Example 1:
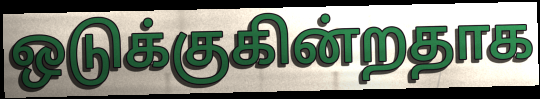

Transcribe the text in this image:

ஒடுக்குகின்றதாக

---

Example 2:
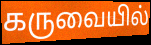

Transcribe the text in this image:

கருவையில்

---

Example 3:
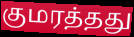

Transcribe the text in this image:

குமரத்தது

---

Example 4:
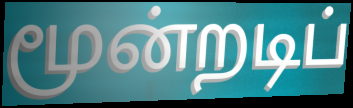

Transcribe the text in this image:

மூன்றடிப்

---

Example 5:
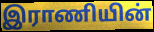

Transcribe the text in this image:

இராணியின்